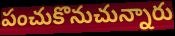
పంచుకొనుచున్నారు